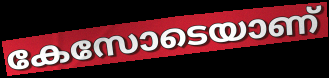
കേസോടെയാണ്